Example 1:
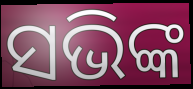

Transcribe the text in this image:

ସଭିଙ୍କ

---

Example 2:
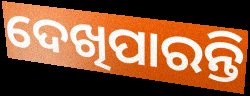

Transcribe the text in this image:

ଦେଖିପାରନ୍ତି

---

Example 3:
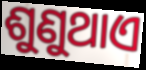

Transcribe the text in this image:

ଶୁଣୁଥାଏ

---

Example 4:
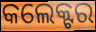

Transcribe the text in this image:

କଲେକ୍ଟର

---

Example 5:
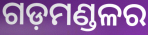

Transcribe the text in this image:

ଗଡ଼ମଣ୍ଡଳର